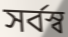
সৰ্বস্ব